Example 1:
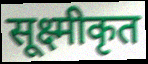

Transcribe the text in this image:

सूक्ष्मीकृत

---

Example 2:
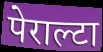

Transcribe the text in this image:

पेराल्टा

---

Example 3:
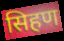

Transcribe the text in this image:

सिहण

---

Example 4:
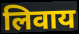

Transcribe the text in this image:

लिवाय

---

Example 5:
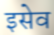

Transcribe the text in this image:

इसेव